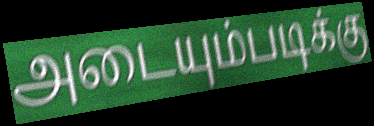
அடையும்படிக்கு